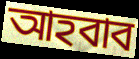
আহবাব